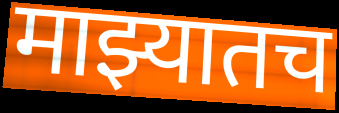
माझ्यातच